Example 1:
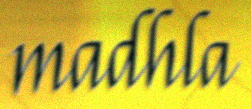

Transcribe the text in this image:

madhla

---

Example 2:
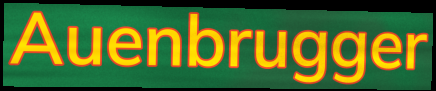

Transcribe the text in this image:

Auenbrugger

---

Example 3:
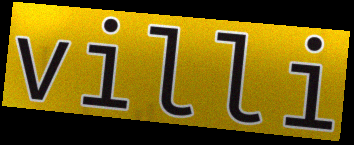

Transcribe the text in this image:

villi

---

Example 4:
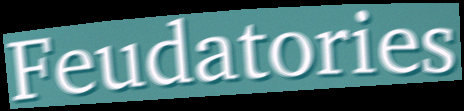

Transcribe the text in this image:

Feudatories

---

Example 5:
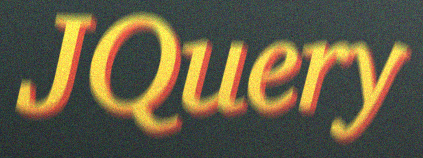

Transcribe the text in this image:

JQuery